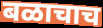
बळाचाच